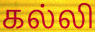
கல்லி